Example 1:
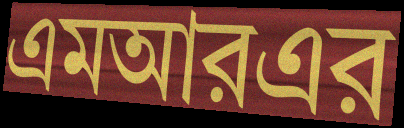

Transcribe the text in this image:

এমআরএর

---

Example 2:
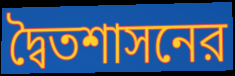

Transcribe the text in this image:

দ্বৈতশাসনের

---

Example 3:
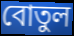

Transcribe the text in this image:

বোতুল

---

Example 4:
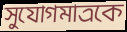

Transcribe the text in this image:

সুযোগমাত্রকে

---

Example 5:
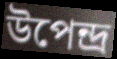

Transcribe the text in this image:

উপেন্দ্র